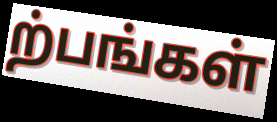
ற்பங்கள்